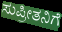
ಸುಪ್ರೀತನಿಗೆ